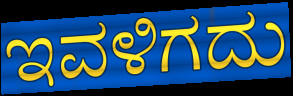
ಇವಳಿಗದು